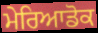
ਮੇਰਿਆਡੋਕ